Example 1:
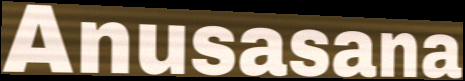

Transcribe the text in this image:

Anusasana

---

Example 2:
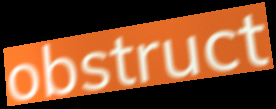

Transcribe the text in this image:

obstruct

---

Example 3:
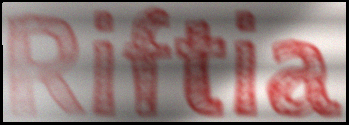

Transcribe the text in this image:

Riftia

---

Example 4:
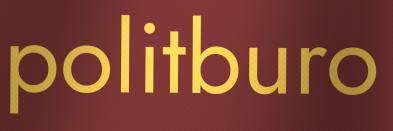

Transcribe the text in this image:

politburo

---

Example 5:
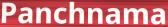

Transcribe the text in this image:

Panchnama